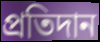
প্ৰতিদান